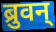
ब्रुवन्